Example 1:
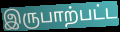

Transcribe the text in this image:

இருபாற்பட்ட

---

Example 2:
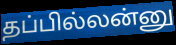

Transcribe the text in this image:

தப்பில்லன்னு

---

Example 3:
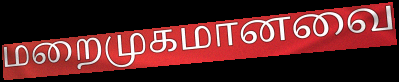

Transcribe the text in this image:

மறைமுகமானவை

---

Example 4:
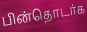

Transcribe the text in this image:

பின்தொடர்க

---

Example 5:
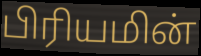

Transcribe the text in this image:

பிரியமின்